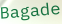
Bagade